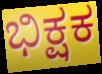
ಭಿಕ್ಷಕ